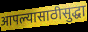
आपल्यासाठीसुद्धा